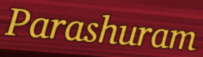
Parashuram